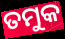
ତମୁକ